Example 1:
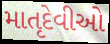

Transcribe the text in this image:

માતૃદેવીઓ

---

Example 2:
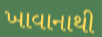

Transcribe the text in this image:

ખાવાનાથી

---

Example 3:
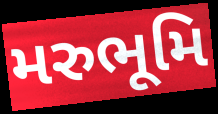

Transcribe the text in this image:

મરુભૂમિ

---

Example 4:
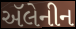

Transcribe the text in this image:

ઍલેનીન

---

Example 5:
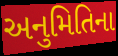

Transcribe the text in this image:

અનુમિતિના